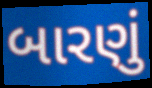
બારણું